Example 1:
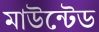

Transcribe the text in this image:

মাউন্টেড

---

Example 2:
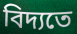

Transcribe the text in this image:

বিদ্যতে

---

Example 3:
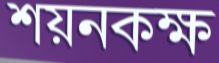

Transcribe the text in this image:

শয়নকক্ষ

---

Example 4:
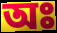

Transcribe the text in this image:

অঃ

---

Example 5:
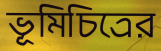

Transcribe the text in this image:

ভূমিচিত্রের